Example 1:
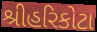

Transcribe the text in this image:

શ્રીહરિકોટા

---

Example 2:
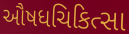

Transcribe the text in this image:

ઔષધચિકિત્સા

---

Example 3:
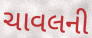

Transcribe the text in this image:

ચાવલની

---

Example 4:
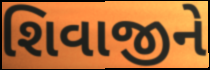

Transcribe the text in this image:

શિવાજીને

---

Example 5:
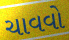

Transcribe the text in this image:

ચાવવો